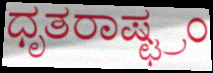
ಧೃತರಾಷ್ಟ್ರಂ